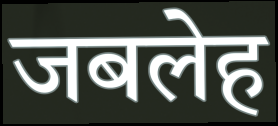
जबलेह